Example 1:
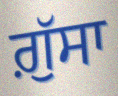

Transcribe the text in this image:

ਗ਼ੁੱਸਾ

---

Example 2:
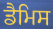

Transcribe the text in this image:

ਡੈਮਿਸ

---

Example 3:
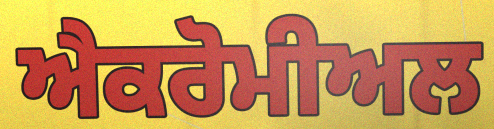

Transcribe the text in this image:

ਐਕਰੋਮੀਅਲ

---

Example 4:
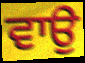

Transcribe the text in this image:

ਵਾਉ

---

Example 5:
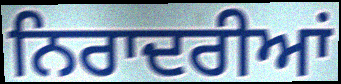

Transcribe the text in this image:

ਨਿਰਾਦਰੀਆਂ